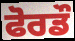
ਫੋਰਡੌ